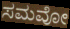
ಸಮವೋ